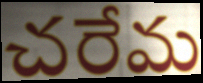
చరేమ